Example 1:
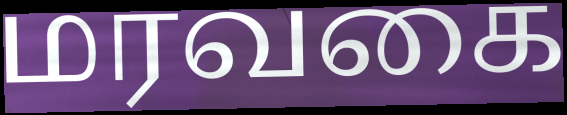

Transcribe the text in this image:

மரவகை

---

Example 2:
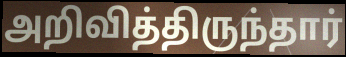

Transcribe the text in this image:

அறிவித்திருந்தார்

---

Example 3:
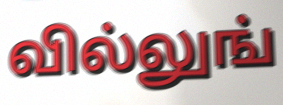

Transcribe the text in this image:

வில்லுங்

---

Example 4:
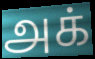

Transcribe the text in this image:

அக்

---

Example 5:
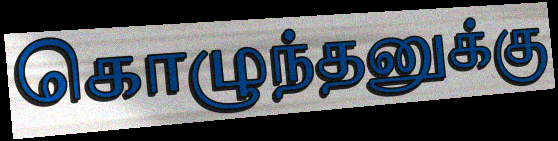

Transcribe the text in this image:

கொழுந்தனுக்கு